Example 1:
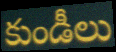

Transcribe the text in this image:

కుండీలు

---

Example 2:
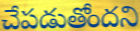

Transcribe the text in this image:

చేపడుతోందని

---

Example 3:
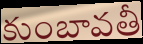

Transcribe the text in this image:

కుంబావతీ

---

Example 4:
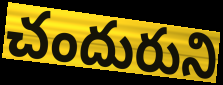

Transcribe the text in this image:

చందురుని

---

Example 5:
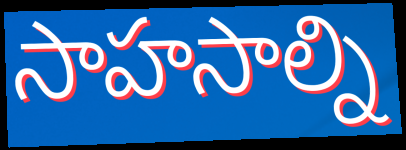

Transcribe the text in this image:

సాహసాల్ని